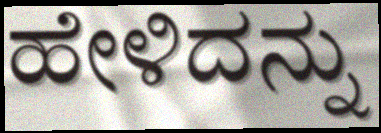
ಹೇಳಿದನ್ನು